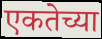
एकतेच्या